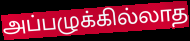
அப்பழுக்கில்லாத